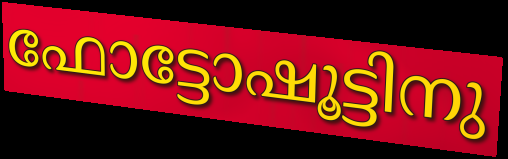
ഫോട്ടോഷൂട്ടിനു